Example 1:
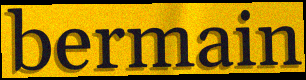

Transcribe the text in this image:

bermain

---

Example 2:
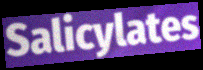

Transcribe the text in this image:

Salicylates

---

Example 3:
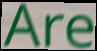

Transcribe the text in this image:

Are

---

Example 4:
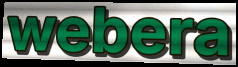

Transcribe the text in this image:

webera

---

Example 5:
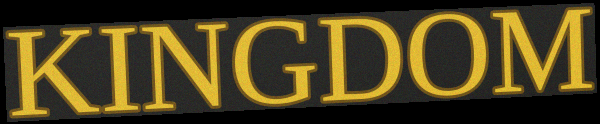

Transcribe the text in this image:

KINGDOM